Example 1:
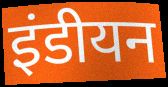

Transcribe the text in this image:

इंडीयन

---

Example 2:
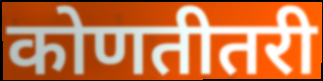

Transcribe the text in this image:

कोणतीतरी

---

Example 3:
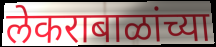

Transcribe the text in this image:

लेकराबाळांच्या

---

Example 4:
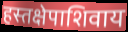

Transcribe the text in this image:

हस्तक्षेपाशिवाय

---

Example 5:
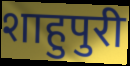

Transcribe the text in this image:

शाहुपुरी